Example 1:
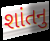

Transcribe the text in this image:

શાંતનુ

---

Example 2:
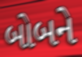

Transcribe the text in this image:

બોબને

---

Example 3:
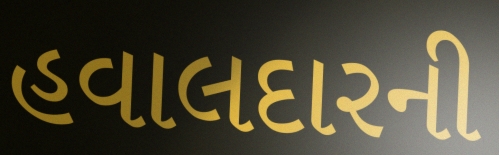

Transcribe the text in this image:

હવાલદારની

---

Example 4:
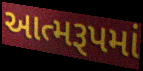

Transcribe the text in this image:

આત્મરૂપમાં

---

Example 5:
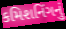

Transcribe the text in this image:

કમિશનિંગનું